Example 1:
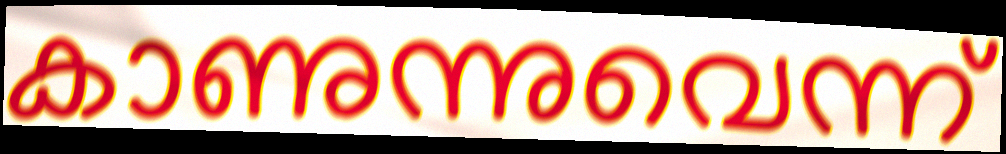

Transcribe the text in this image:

കാണുന്നുവെന്ന്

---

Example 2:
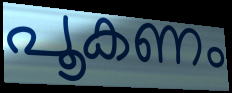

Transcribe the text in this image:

പൂകണം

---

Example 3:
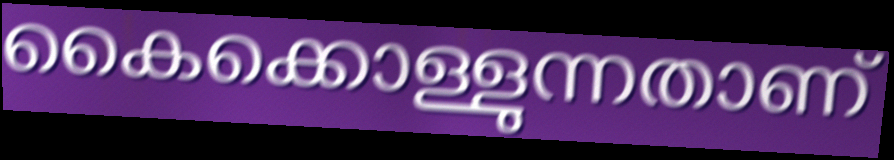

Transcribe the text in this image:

കൈക്കൊള്ളുന്നതാണ്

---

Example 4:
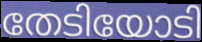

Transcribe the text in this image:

തേടിയോടി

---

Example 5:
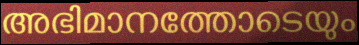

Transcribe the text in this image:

അഭിമാനത്തോടെയും